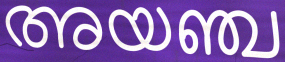
അയഞ്ച